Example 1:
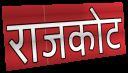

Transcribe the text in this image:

राजकोट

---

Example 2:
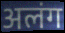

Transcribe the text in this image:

अलंग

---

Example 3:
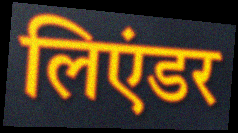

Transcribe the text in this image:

लिएंडर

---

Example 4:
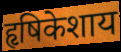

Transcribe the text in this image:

हृषिकेशाय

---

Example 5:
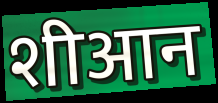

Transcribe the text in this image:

शीआन